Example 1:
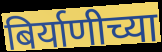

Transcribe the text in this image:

बिर्याणीच्या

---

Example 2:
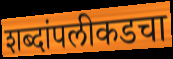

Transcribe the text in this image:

शब्दांपलीकडचा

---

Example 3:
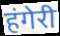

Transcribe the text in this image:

हंगेरी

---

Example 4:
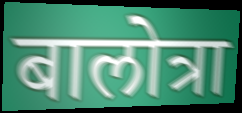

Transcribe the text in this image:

बालोत्रा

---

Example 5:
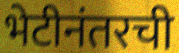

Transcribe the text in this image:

भेटीनंतरची